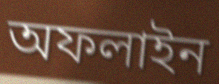
অফলাইন